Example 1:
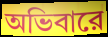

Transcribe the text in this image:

অভিবারে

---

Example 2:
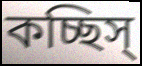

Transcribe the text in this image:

কচ্ছিস্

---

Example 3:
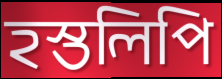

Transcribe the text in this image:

হস্তলিপি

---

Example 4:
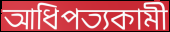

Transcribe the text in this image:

আধিপত্যকামী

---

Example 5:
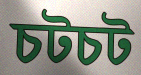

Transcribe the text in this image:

চটচট